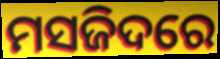
ମସଜିଦରେ